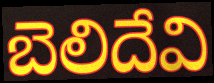
బెలిదేవి